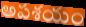
అపశయం